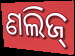
ଣଲିଜ୍